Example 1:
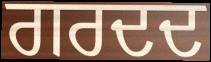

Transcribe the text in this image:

ਗਰਦਦ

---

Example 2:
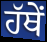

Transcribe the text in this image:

ਹੱਥੇਂ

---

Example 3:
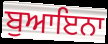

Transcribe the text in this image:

ਬੁਆਇਨਾ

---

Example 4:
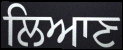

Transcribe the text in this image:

ਲਿਆਣ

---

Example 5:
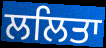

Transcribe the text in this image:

ਲਲਿਤਾ